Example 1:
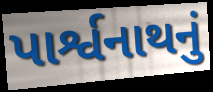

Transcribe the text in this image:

પાર્શ્વનાથનું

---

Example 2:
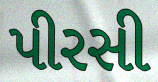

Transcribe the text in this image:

પીરસી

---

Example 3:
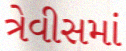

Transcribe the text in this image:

ત્રેવીસમાં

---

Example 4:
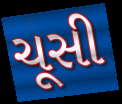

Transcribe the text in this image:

ચૂસી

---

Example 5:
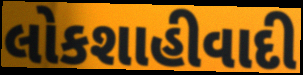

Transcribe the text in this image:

લોકશાહીવાદી